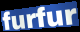
furfur